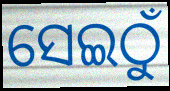
ସେଇଠୁଁ